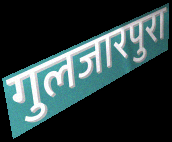
गुलजारपुरा